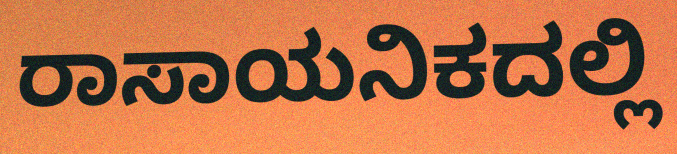
ರಾಸಾಯನಿಕದಲ್ಲಿ